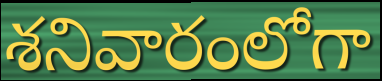
శనివారంలోగా